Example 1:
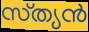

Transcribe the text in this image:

സ്‌ത്യൻ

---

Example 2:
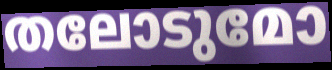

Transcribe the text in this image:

തലോടുമോ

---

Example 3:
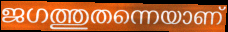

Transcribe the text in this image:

ജഗത്തുതന്നെയാണ്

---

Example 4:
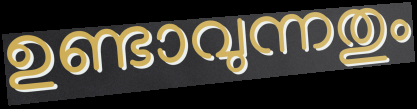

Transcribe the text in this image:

ഉണ്ടാവുന്നതും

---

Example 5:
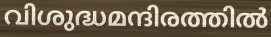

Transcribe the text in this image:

വിശുദ്ധമന്ദിരത്തിൽ